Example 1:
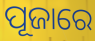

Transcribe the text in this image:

ପୂଜାରେ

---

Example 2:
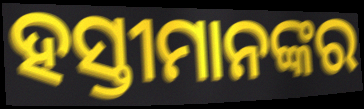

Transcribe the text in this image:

ହସ୍ତୀମାନଙ୍କର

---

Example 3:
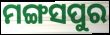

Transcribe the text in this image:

ମଙ୍ଗସପୁର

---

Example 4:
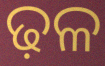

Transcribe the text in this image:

ଢ଼ଳ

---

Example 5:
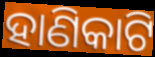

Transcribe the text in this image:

ହାଣିକାଟି